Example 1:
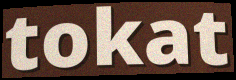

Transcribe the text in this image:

tokat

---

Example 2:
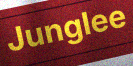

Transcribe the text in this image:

Junglee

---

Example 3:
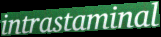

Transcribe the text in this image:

intrastaminal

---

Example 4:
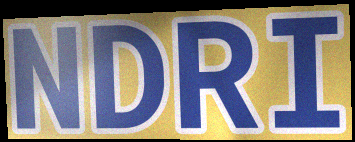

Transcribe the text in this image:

NDRI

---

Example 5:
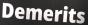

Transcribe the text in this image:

Demerits